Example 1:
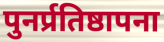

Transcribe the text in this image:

पुनर्प्रतिष्ठापना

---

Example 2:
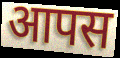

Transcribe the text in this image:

आपस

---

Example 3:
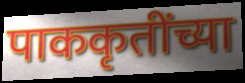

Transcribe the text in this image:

पाककृतींच्या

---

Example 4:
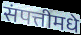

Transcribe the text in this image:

संपत्तीमधे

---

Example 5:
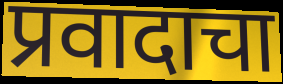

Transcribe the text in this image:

प्रवादाचा